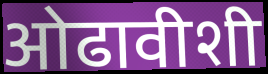
ओढावीशी